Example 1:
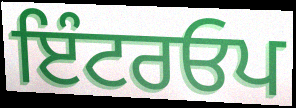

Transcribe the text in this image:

ਇੰਟਰਓਪ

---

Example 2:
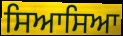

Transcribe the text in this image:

ਸਿਆਸਿਆ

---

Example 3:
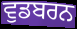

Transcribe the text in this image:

ਵੁਡਬਰਨ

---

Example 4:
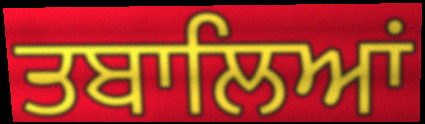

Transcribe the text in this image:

ਤਬਾਲਿਆਂ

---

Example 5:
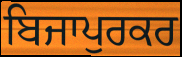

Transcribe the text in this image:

ਬਿਜਾਪੁਰਕਰ